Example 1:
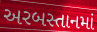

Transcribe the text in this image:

અરબસ્તાનમાં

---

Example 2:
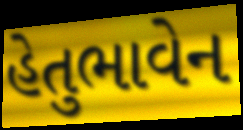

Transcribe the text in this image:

હેતુભાવેન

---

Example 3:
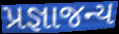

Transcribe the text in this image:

પ્રજ્ઞાજન્ય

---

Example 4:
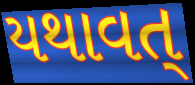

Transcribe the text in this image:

યથાવત્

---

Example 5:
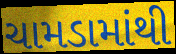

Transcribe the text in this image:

ચામડામાંથી